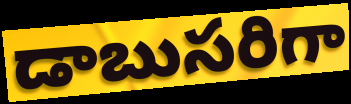
డాబుసరిగా